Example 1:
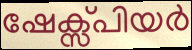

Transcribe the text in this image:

ഷേക്സ്പിയർ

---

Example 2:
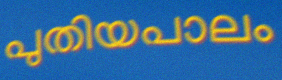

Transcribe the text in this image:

പുതിയപാലം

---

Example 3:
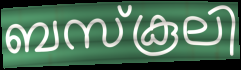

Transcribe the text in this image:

ബസ്കൂലി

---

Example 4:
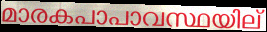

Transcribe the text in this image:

മാരകപാപാവസ്ഥയില്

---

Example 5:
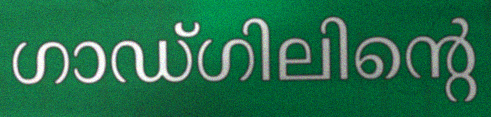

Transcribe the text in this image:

ഗാഡ്ഗിലിന്റെ